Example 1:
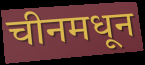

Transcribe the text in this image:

चीनमधून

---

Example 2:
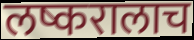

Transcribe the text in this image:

लष्करालाच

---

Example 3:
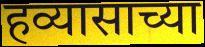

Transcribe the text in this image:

हव्यासाच्या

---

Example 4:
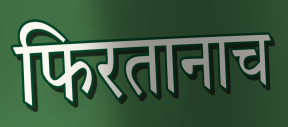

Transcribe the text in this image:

फिरतानाच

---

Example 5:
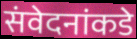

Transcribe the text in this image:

संवेदनांकडे